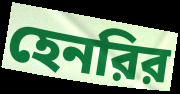
হেনরির